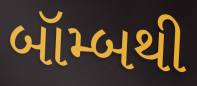
બૉમ્બથી